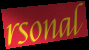
rsonal